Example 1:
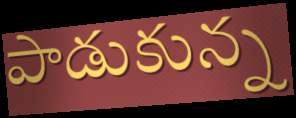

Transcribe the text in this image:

పాడుకున్న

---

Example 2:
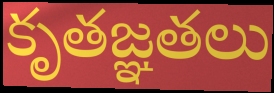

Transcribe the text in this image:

కృతజ్ఞతలు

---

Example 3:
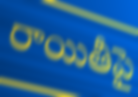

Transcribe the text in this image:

రాయితీపై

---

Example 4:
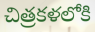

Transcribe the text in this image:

చిత్రకళలోకి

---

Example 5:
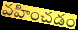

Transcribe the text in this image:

వహించడం